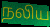
நலிய